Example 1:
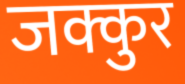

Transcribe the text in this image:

जक्कुर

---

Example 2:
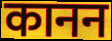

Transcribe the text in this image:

कानन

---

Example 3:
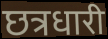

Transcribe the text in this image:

छत्रधारी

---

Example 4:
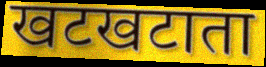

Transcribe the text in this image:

खटखटाता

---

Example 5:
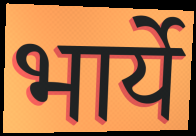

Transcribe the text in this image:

भार्ये